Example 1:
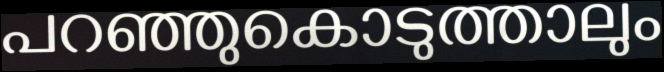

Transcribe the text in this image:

പറഞ്ഞുകൊടുത്താലും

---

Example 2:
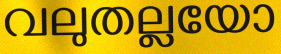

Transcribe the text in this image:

വലുതല്ലയോ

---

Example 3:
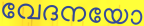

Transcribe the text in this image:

വേദനയോ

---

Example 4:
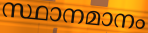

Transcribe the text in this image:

സ്ഥാനമാനം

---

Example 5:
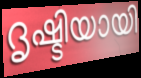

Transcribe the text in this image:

ദൃഷ്ടിയായി